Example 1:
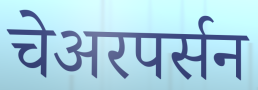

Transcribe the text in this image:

चेअरपर्सन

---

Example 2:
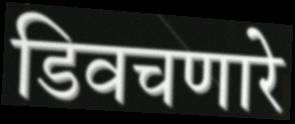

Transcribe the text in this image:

डिवचणारे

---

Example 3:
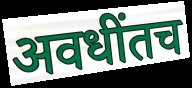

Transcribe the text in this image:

अवधींतच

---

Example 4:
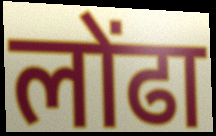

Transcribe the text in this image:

लोंढा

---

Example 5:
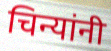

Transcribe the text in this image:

चिन्यांनी